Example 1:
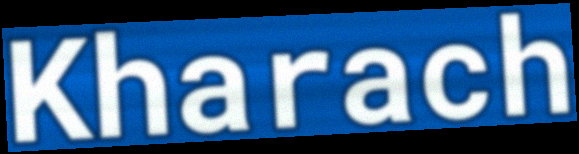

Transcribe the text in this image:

Kharach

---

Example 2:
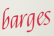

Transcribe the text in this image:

barges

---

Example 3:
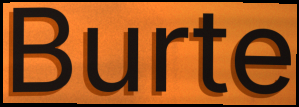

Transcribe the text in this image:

Burte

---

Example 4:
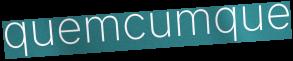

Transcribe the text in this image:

quemcumque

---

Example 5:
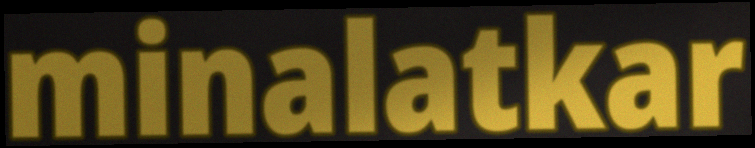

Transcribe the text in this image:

minalatkar